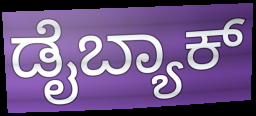
ಡೈಬ್ಯಾಕ್